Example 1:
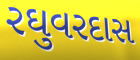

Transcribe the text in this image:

રઘુવરદાસ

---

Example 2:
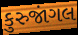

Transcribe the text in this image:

કુરુજાંગલ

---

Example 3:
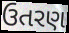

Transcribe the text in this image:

ઉતરણ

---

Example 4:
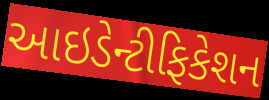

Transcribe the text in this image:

આઇડેન્ટીફિકેશન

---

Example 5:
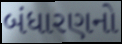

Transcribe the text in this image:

બંધારણનો